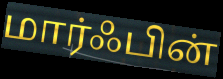
மார்ஃபின்